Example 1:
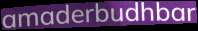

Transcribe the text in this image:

amaderbudhbar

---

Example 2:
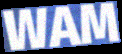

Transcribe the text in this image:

WAM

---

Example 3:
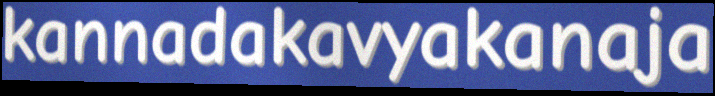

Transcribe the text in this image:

kannadakavyakanaja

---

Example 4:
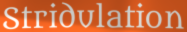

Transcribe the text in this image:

Stridulation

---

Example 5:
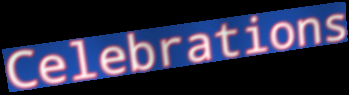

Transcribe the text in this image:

Celebrations